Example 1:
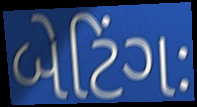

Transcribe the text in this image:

બેટિંગઃ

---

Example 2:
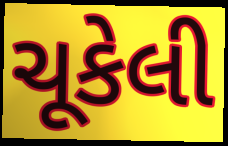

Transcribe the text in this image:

ચૂકેલી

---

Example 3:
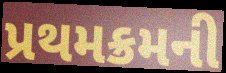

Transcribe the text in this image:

પ્રથમક્રમની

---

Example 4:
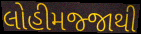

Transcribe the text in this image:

લોહીમજ્જાથી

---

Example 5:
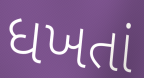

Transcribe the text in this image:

ધખતાં